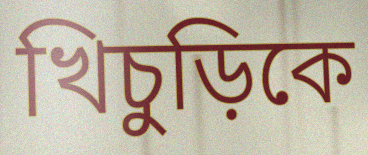
খিচুড়িকে